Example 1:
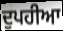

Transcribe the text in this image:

ਦੁਪਹੀਆ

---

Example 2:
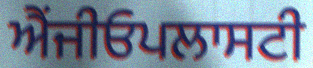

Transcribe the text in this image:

ਐਂਜੀਓਪਲਾਸਟੀ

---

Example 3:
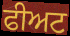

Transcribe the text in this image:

ਫੀਅਟ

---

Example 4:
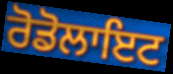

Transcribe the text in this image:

ਰੋਡੋਲਾਇਟ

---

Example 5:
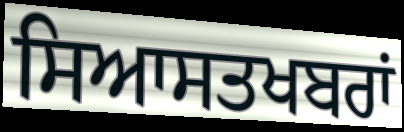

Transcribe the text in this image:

ਸਿਆਸਤਖਬਰਾਂ